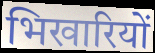
भिखारियों